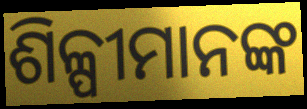
ଶିଳ୍ପୀମାନଙ୍କ